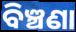
ବିଞ୍ଚଣା